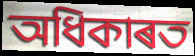
অধিকাৰত